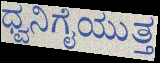
ಧ್ವನಿಗೈಯುತ್ತ